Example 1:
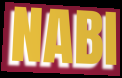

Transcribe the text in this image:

NABI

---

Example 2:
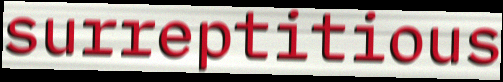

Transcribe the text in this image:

surreptitious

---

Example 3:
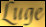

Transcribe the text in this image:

Luge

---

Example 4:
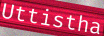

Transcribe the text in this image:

Uttistha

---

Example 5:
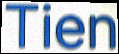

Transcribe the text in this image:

Tien